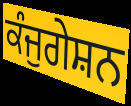
ਕੰਜੁਗੇਸ਼ਨ